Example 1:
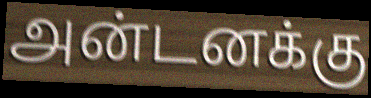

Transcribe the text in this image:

அன்டனக்கு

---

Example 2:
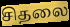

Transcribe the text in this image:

சிதலை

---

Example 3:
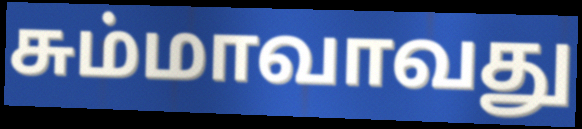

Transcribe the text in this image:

சும்மாவாவது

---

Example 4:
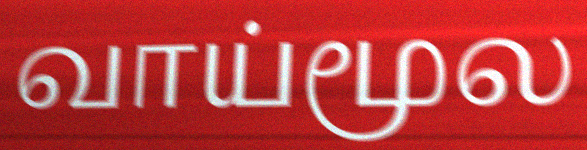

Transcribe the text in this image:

வாய்மூல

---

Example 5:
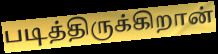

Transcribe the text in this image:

படித்திருக்கிறான்